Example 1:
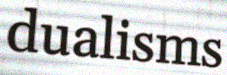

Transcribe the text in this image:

dualisms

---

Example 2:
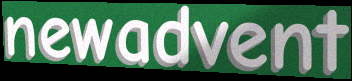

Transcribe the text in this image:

newadvent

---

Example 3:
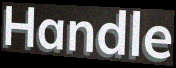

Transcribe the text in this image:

Handle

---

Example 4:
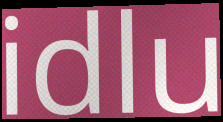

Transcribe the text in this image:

idlu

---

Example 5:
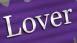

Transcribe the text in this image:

Lover